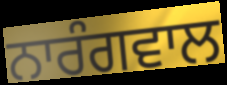
ਨਾਰੰਗਵਾਲ